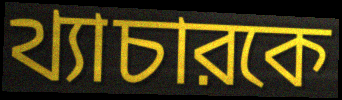
থ্যাচারকে